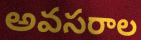
అవసరాల